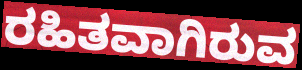
ರಹಿತವಾಗಿರುವ